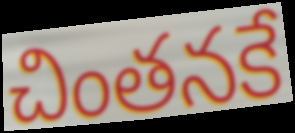
చింతనకే